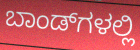
ಬಾಂಡ್‌ಗಳಲ್ಲಿ